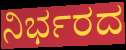
ನಿರ್ಭರದ